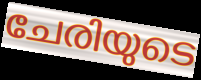
ചേരിയുടെ